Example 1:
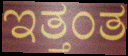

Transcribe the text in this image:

ಇತ್ತಂತ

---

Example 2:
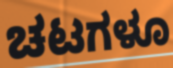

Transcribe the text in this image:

ಚಟಗಳೂ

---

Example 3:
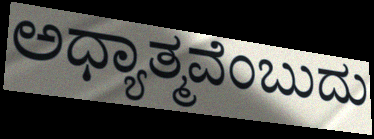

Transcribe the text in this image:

ಅಧ್ಯಾತ್ಮವೆಂಬುದು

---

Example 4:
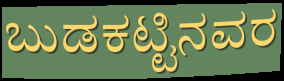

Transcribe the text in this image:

ಬುಡಕಟ್ಟಿನವರ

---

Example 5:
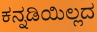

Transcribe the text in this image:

ಕನ್ನಡಿಯಿಲ್ಲದ